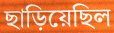
ছাড়িয়েছিল